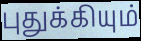
புதுக்கியும்